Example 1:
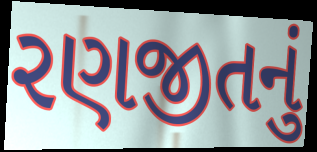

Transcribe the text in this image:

રણજીતનું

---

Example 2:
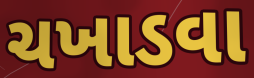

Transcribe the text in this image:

ચખાડવા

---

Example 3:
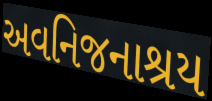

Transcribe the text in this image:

અવનિજનાશ્રય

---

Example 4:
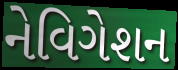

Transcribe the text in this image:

નેવિગેશન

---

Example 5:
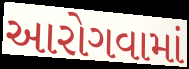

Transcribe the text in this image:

આરોગવામાં